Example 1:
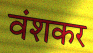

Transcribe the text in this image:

वंशकर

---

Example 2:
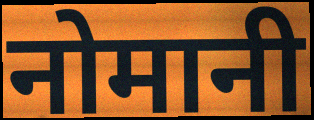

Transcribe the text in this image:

नोमानी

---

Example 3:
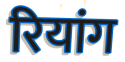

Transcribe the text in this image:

रियांग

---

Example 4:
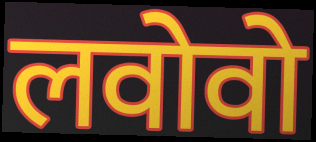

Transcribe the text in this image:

लवोवो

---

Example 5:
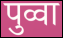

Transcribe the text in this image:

पुव्वा